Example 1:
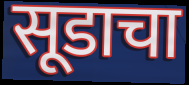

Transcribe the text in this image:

सूडाचा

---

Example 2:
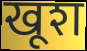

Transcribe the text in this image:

खूश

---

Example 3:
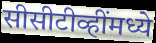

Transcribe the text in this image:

सीसीटीव्हींमध्ये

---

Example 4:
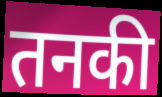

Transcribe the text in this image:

तनकी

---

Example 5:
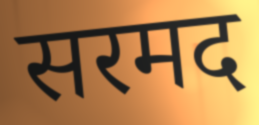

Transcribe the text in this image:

सरमद